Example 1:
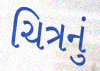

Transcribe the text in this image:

ચિત્રનું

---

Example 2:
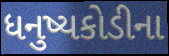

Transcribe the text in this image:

ધનુષ્યકોડીના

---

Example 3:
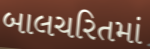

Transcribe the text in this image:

બાલચરિતમાં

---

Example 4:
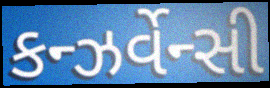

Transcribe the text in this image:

કન્ઝર્વેન્સી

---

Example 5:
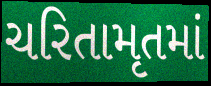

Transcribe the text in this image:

ચરિતામૃતમાં